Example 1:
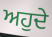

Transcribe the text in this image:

ਅਹੁਦੇ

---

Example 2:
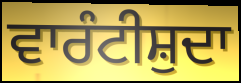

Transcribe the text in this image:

ਵਾਰੰਟੀਸ਼ੁਦਾ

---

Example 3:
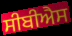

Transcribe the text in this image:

ਸੀਬੀਐਸ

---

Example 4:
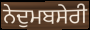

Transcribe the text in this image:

ਨੇਦੁਮਬਸੇਰੀ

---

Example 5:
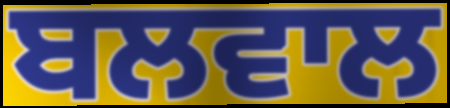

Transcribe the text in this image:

ਬਲਵਾਲ